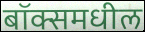
बॉक्समधील